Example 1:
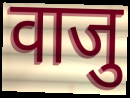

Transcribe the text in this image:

वाजु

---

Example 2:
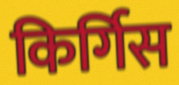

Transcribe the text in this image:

किर्गिस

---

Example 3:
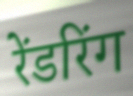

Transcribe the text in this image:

रेंडरिंग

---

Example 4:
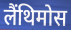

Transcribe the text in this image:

लैंथिमोस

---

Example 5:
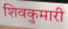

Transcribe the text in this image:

शिवकुमारी